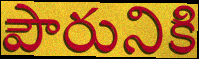
పౌరునికి